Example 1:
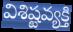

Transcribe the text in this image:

విశిష్టవ్యక్తి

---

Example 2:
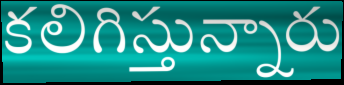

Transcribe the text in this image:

కలిగిస్తున్నారు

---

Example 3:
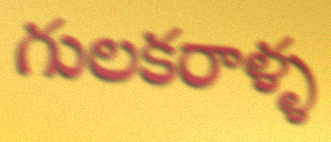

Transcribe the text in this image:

గులకరాళ్ళ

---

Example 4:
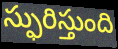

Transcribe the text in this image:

స్ఫురిస్తుంది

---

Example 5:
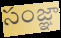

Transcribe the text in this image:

సంజ్ఞా